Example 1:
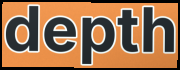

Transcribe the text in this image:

depth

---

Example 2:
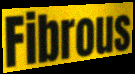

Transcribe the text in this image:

Fibrous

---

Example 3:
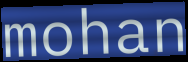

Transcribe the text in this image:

mohan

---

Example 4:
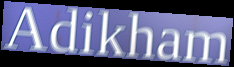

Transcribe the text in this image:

Adikham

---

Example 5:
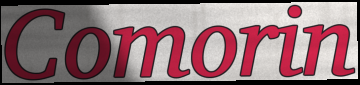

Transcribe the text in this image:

Comorin